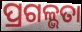
ପ୍ରଗଳ୍ଭତା